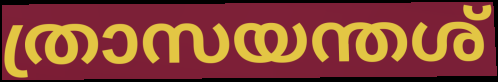
ത്രാസയന്തശ്